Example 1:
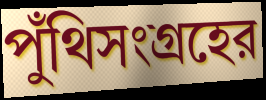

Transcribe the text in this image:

পুঁথিসংগ্রহের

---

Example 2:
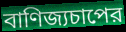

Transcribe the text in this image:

বাণিজ্যচাপের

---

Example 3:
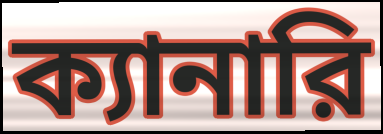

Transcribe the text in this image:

ক্যানারি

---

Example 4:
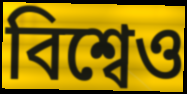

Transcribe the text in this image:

বিশ্বেও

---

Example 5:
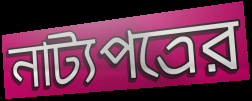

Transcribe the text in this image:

নাট্যপত্রের